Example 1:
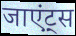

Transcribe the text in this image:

जाएंट्स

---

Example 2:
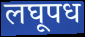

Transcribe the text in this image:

लघूपध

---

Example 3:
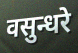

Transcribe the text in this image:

वसुन्धरे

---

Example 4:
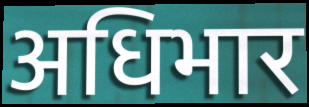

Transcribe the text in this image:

अधिभार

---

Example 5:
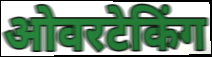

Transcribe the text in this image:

ओवरटेकिंग